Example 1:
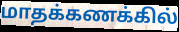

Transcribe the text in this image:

மாதக்கணக்கில்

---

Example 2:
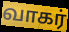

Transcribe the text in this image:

வாகர்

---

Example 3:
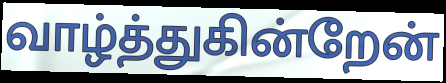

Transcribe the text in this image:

வாழ்த்துகின்றேன்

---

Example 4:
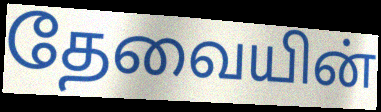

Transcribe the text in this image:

தேவையின்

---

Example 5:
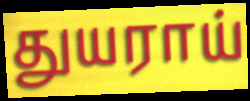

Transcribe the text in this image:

துயராய்